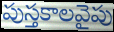
పుస్తకాలవైపు